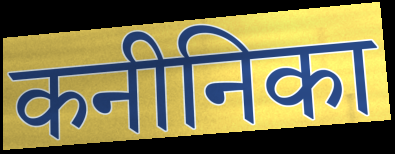
कनीनिका